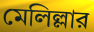
মেলিল্লার